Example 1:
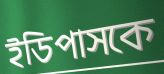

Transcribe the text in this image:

ইডিপাসকে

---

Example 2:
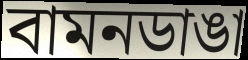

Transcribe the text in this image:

বামনডাঙা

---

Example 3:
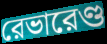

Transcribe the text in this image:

রেভারেণ্ড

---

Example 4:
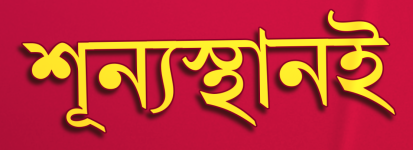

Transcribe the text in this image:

শূন্যস্থানই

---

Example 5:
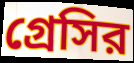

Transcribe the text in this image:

গ্রেসির